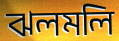
ঝলমলি